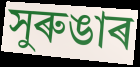
সুৰুঙাৰ